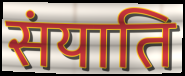
संयाति